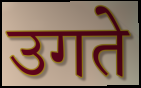
उगते